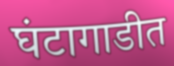
घंटागाडीत